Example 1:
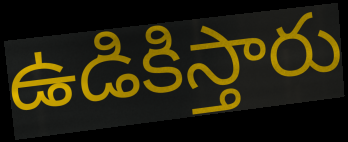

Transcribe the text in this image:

ఉడికిస్తారు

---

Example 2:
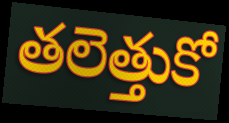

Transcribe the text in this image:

తలెత్తుకో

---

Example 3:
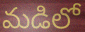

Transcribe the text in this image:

మడిలో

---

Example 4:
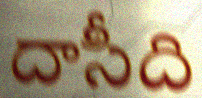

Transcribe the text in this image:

దాసీది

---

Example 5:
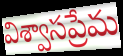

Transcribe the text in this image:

విశ్వాసప్రేమ